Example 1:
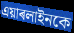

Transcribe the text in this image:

এয়াৰলাইনকে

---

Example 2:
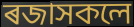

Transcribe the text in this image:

ৰজাসকলে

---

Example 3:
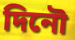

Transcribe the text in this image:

দিনৌ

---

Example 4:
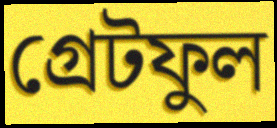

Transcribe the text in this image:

গ্ৰেটফুল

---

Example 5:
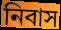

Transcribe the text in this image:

নিবাস